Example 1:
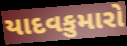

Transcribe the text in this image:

યાદવકુમારો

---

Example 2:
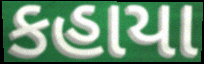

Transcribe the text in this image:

કહાયા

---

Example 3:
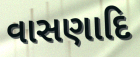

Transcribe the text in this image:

વાસણાદિ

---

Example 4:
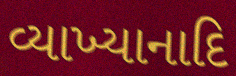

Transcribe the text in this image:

વ્યાખ્યાનાદિ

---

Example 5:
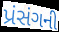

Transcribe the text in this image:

પ્રંસંગની